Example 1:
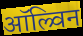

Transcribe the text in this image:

ऑल्विन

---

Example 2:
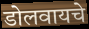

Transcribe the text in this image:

डोलवायचे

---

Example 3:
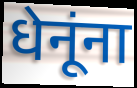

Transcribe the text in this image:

धेनूंना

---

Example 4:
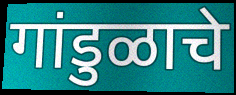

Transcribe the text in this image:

गांडुळाचे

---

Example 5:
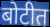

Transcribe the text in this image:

बोटीत